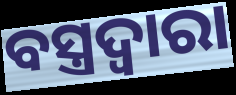
ବସ୍ତ୍ରଦ୍ୱାରା